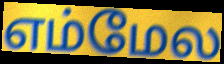
எம்மேல